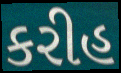
કરીહ